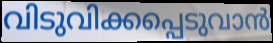
വിടുവിക്കപ്പെടുവാൻ